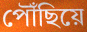
পৌঁছিয়ে